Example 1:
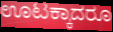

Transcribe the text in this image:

ಊಟಕ್ಕಾದರೂ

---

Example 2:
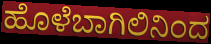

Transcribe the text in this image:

ಹೊಳೆಬಾಗಿಲಿನಿಂದ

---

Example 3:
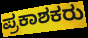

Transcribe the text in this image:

ಪ್ರಕಾಶಕರು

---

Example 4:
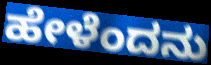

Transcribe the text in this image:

ಹೇಳೆಂದನು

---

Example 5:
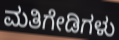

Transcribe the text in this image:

ಮತಿಗೇಡಿಗಳು